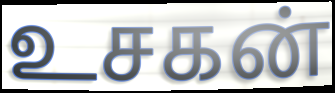
உசகன்